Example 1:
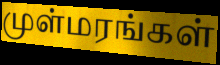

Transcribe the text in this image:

முள்மரங்கள்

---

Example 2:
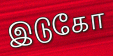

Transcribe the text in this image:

இடுகோ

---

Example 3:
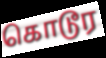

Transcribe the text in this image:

கொடூர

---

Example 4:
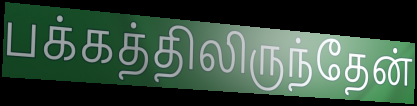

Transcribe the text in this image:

பக்கத்திலிருந்தேன்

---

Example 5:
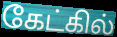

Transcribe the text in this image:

கேட்கில்